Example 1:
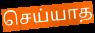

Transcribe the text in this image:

செய்யாத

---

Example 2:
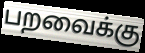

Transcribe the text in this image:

பறவைக்கு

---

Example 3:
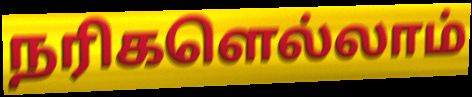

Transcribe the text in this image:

நரிகளெல்லாம்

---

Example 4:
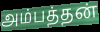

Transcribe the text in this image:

அம்பத்தன்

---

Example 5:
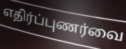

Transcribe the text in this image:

எதிர்ப்புணர்வை